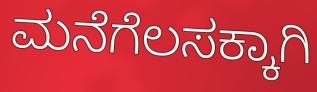
ಮನೆಗೆಲಸಕ್ಕಾಗಿ